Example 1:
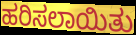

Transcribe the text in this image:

ಹರಿಸಲಾಯಿತು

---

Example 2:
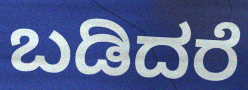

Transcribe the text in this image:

ಬಡಿದರೆ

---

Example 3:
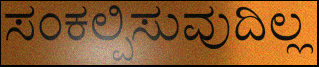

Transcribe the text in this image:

ಸಂಕಲ್ಪಿಸುವುದಿಲ್ಲ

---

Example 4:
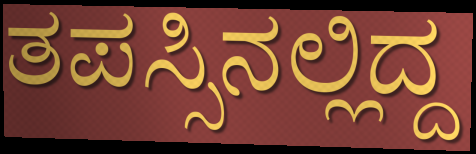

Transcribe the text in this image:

ತಪಸ್ಸಿನಲ್ಲಿದ್ದ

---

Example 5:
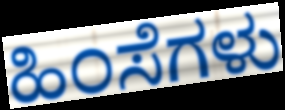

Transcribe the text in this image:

ಹಿಂಸೆಗಳು